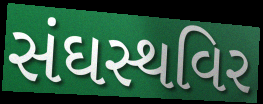
સંઘસ્થવિર